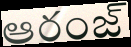
ఆరంజ్